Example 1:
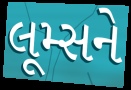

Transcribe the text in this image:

લૂમ્સને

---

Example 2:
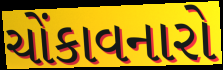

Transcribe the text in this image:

ચોંકાવનારો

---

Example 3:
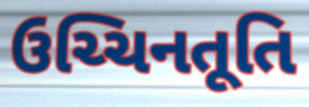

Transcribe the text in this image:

ઉચ્ચિનતૂતિ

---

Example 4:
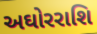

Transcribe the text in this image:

અઘોરરાશિ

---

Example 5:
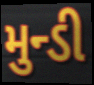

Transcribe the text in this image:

મુન્ડી